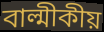
বাল্মীকীয়